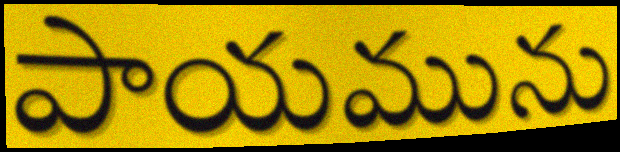
పాయమును